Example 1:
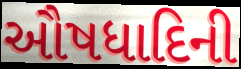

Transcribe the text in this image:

ઔષધાદિની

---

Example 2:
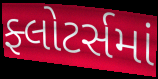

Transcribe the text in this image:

ફ્લોટર્સમાં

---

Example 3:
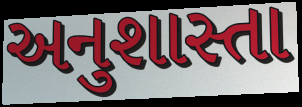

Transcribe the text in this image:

અનુશાસ્તા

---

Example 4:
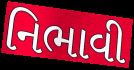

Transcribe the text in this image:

નિભાવી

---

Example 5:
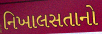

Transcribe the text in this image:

નિખાલસતાનો